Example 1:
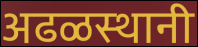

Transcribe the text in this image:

अढळस्थानी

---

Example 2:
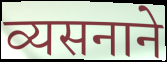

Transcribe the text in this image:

व्यसनाने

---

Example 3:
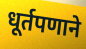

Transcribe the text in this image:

धूर्तपणाने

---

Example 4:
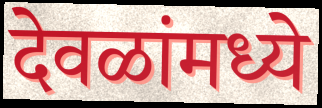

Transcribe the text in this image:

देवळांमध्ये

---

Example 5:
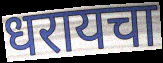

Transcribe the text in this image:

धरायचा